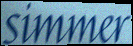
simmer